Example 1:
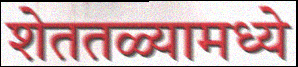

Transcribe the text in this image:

शेततळ्यामध्ये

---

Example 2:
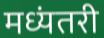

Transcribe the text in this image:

मध्यंतरी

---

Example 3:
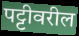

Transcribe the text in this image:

पट्टीवरील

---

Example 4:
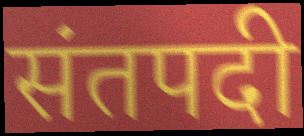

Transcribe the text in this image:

संतपदी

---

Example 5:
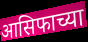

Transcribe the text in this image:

आसिफाच्या